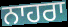
ਨਾਹਰਾ